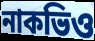
নাকভিও